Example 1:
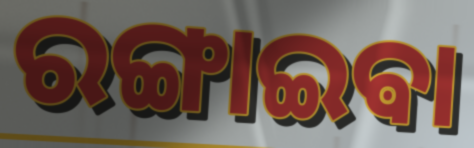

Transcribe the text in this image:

ରଙ୍ଗାଇଵା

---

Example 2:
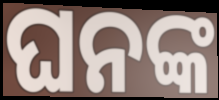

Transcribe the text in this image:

ଘନଙ୍କ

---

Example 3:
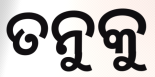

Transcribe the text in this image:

ତନୁକୁ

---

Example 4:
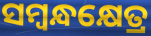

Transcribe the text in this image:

ସମ୍ବନ୍ଧକ୍ଷେତ୍ର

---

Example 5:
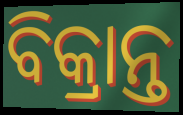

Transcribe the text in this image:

ବିକ୍ରାନ୍ତ